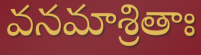
వనమాశ్రితాః